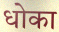
धोका